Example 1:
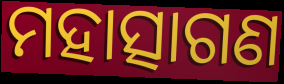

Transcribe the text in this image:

ମହାତ୍ସାଗଣ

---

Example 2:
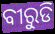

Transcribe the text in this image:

ବୀରୁଡି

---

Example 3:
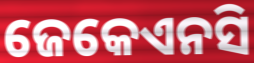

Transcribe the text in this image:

ଜେକେଏନସି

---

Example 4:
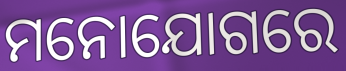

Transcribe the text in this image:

ମନୋଯୋଗରେ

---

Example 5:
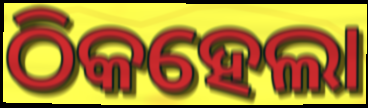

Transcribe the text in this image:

ଠିକହେଲା